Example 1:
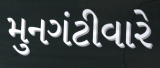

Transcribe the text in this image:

મુનગંટીવારે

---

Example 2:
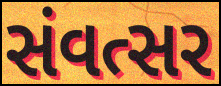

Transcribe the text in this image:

સંવત્સર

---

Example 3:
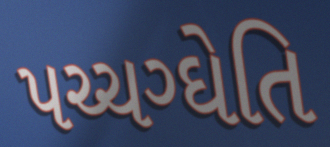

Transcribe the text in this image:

પચ્ચગ્ઘેતિ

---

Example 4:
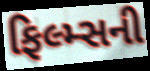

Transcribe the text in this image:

ફિલ્મ્સની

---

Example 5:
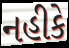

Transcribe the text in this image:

નહીકે